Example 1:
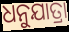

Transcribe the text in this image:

ଧନୁଯାତ୍ରା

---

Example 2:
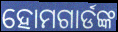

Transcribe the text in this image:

ହୋମଗାର୍ଡଙ୍କ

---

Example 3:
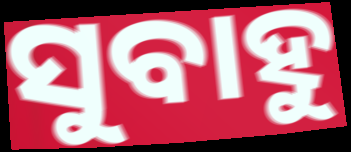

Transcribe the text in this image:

ସୁବାହୁ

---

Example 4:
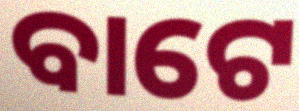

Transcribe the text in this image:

ବାଟେ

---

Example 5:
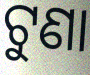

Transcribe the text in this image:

ଟୁଣା